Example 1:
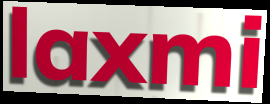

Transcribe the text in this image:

laxmi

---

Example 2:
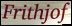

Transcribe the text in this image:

Frithjof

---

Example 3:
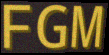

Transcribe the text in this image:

FGM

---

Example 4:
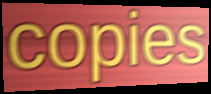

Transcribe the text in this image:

copies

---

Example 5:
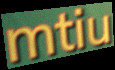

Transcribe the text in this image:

mtiu